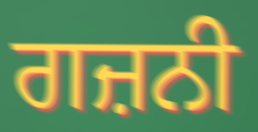
ਗਜ਼ਨੀ